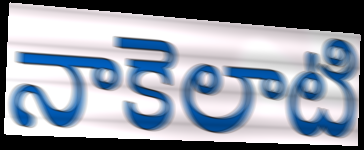
నాకెలాటి